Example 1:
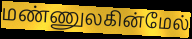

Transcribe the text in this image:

மண்ணுலகின்மேல்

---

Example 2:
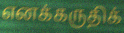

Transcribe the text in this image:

எனக்கருதிக்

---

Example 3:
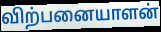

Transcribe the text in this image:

விற்பனையாளன்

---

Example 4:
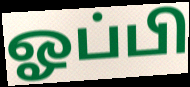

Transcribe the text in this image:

ஓப்பி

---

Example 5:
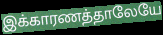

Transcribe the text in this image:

இக்காரணத்தாலேயே